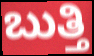
ಬುತ್ತಿ